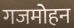
गजमोहन